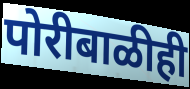
पोरीबाळीही